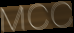
MCC